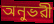
অনুভৱী